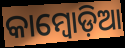
କାମ୍ବୋଡ଼ିଆ